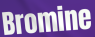
Bromine